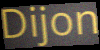
Dijon